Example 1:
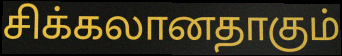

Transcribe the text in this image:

சிக்கலானதாகும்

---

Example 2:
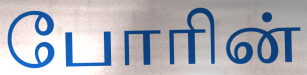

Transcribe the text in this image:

போரின்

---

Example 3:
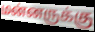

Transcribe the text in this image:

மன்னருக்கு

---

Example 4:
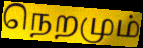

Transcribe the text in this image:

நெறமும்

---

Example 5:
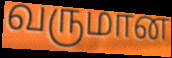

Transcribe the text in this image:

வருமான